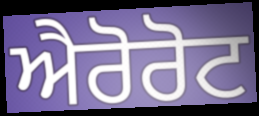
ਐਰੋਰੋਟ